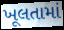
ખૂલતામાં